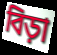
বিড়া